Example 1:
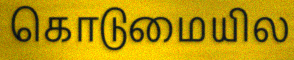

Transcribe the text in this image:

கொடுமையில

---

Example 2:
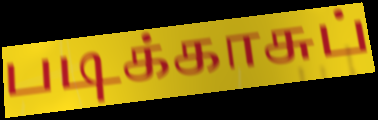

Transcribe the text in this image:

படிக்காசுப்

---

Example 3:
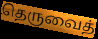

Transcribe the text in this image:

தெருவைத்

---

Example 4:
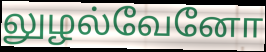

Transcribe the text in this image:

லுழல்வேனோ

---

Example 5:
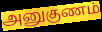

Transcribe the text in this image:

அனுகுணம்